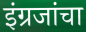
इंग्रजांचा